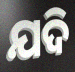
ଯଦି